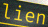
lien